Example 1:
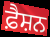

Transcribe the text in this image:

ਫ਼ੈਸ਼ਨ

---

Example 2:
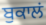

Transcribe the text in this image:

ਬੁਕਾਲਂ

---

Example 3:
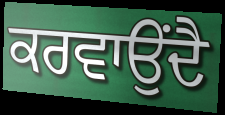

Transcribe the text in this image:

ਕਰਵਾਉਂਦੈ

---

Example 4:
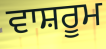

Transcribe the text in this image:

ਵਾਸ਼ਰੂਮ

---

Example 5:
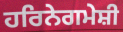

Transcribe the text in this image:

ਹਰਿਨੇਗਮੇਸ਼ੀ